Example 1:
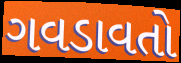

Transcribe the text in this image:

ગવડાવતો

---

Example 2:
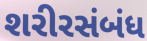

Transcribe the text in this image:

શરીરસંબંધ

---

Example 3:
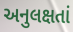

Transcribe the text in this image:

અનુલક્ષતાં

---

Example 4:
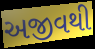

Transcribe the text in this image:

અજીવથી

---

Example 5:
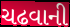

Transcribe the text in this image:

ચઢવાની